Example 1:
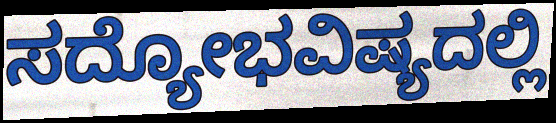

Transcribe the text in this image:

ಸದ್ಯೋಭವಿಷ್ಯದಲ್ಲಿ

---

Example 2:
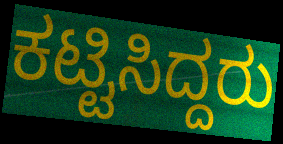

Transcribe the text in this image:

ಕಟ್ಟಿಸಿದ್ದರು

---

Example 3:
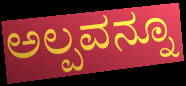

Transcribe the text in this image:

ಅಲ್ಪವನ್ನೂ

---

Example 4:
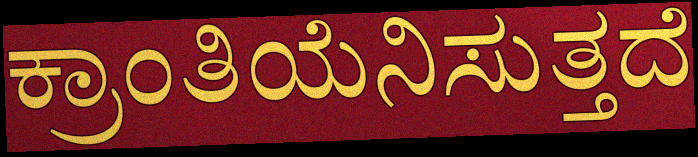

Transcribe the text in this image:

ಕ್ರಾಂತಿಯೆನಿಸುತ್ತದೆ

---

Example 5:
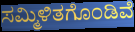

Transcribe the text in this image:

ಸಮ್ಮಿಳಿತಗೊಂಡಿವೆ